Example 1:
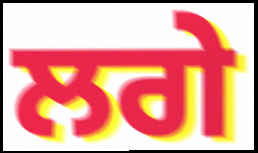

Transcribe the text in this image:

ਲਗੇ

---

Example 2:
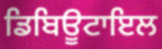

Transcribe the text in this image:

ਡਿਬਿਊਟਾਇਲ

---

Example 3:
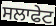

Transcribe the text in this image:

ਸਲਾਫੇਟ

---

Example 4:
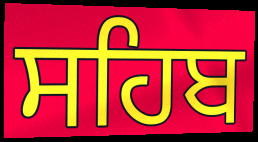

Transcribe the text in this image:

ਸਹਿਬ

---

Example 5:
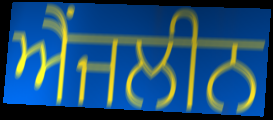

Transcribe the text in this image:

ਐਂਜਲੀਨ